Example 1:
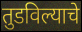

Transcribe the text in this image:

तुडविल्याचे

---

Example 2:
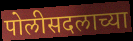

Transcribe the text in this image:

पोलीसदलाच्या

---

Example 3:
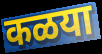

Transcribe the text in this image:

कळया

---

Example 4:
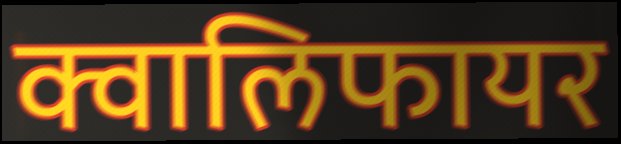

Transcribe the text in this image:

क्वालिफायर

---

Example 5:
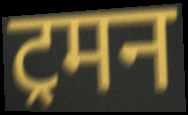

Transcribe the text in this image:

ट्रमन